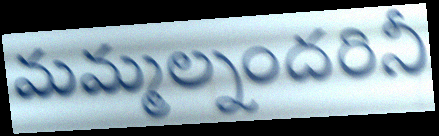
మమ్మల్నందరినీ